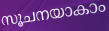
സൂചനയാകാം